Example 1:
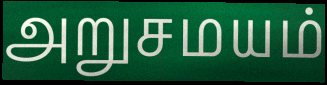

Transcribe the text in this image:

அறுசமயம்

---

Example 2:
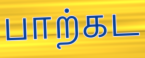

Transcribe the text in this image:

பாற்கட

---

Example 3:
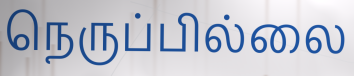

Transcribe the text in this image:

நெருப்பில்லை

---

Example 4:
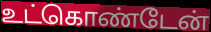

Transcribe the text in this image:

உட்கொண்டேன்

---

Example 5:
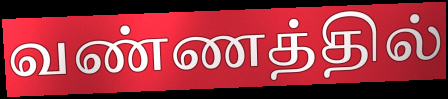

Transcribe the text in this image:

வண்ணத்தில்